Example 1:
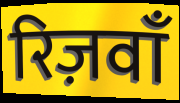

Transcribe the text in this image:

रिज़वाँ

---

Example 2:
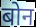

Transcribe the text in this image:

बोन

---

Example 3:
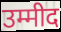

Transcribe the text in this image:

उम्मीद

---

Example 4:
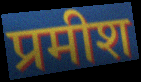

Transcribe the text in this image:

प्रमीश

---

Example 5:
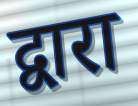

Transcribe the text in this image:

द्वारा